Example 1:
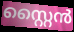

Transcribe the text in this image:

സ്റ്റൈൻ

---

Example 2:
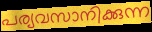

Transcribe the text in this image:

പര്യവസാനിക്കുന്ന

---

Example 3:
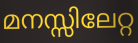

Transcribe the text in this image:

മനസ്സിലേറ്റ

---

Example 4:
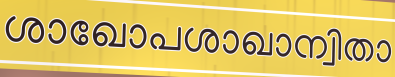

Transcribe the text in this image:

ശാഖോപശാഖാന്വിതാ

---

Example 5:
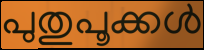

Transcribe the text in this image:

പുതുപൂക്കൾ